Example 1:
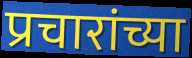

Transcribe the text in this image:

प्रचारांच्या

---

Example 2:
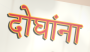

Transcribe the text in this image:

दोघांना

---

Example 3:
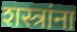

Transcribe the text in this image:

शस्त्रांना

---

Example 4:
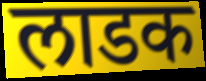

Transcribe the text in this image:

लाडक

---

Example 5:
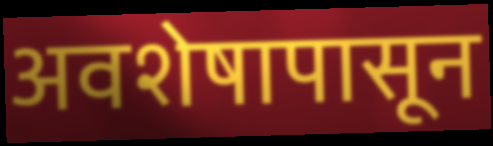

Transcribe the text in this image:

अवशेषापासून